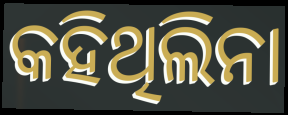
କହିଥିଲିନା